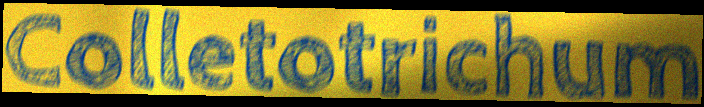
Colletotrichum